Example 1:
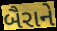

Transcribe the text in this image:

બૈરાને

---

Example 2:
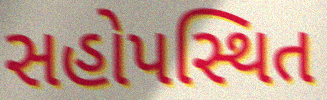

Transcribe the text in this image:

સહોપસ્થિત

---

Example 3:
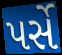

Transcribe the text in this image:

પર્સે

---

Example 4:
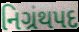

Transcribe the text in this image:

નિગ્રંથપદ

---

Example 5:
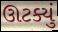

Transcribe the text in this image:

ઊટક્યું